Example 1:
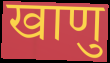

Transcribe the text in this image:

खाणु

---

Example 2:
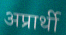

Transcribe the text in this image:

अप्रार्थी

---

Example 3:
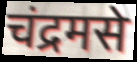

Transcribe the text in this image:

चंद्रमसे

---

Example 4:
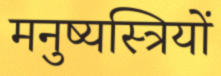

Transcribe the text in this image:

मनुष्यस्त्रियों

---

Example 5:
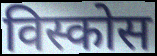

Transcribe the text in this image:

विस्कोस